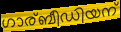
ഗാര്ബീഡിയന്